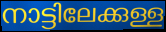
നാട്ടിലേക്കുള്ള